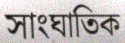
সাংঘাতিক